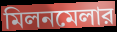
মিলনমেলার